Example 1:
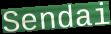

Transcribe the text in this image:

Sendai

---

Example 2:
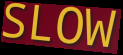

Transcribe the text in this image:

SLOW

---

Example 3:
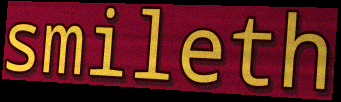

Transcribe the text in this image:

smileth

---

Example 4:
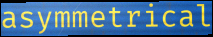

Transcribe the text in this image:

asymmetrical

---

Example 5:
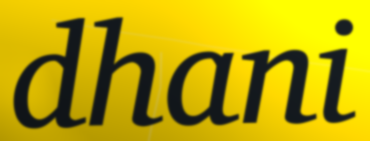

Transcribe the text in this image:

dhani